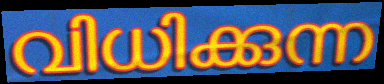
വിധിക്കുന്ന